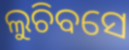
ଲୁଚିବସେ